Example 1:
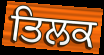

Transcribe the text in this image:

ਤਿਲਕ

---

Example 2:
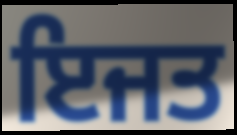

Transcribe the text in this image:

ਇਜਤ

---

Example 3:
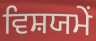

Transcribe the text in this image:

ਵਿਸ਼ਯਮੇਂ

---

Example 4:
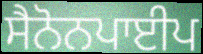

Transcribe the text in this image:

ਸੈਨੋਨਪਾਈਪ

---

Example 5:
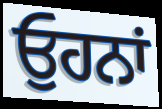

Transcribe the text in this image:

ਓੁਹਨਾਂ